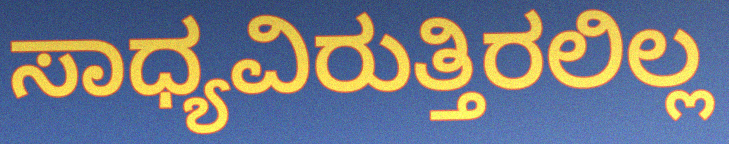
ಸಾಧ್ಯವಿರುತ್ತಿರಲಿಲ್ಲ